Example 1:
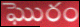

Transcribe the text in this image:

ఘొరం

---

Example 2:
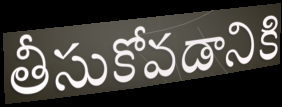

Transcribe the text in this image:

తీసుకోవడానికి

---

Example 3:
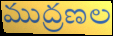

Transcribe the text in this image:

ముద్రణల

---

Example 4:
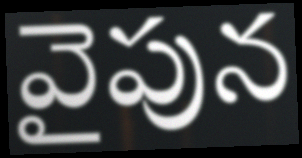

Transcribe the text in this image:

వైపున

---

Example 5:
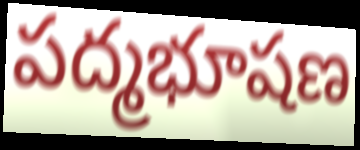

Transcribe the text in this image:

పద్మభూషణ